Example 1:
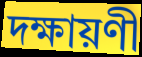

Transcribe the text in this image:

দক্ষায়ণী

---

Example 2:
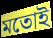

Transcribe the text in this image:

মতোই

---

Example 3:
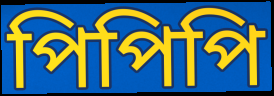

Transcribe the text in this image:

পিপিপি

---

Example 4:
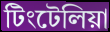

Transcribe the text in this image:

টিংটেলিয়া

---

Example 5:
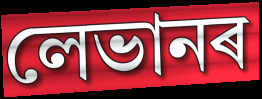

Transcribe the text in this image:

লেভানৰ